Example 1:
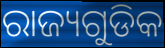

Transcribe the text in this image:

ରାଜ୍ୟଗୁଡିକ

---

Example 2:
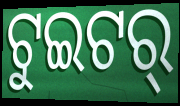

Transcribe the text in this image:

ଟୁଇଟର୍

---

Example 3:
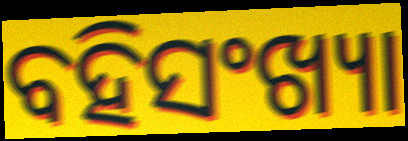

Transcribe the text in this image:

ବହିସଂଖ୍ୟା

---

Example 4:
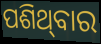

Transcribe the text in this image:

ପଶିଥ୍‌ବାର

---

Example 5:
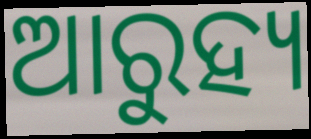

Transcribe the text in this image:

ଆରୁହ୍ୟ